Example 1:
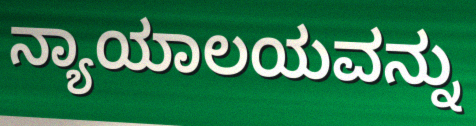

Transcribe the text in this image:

ನ್ಯಾಯಾಲಯವನ್ನು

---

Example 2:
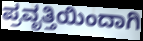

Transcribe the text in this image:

ಪ್ರವೃತ್ತಿಯಿಂದಾಗಿ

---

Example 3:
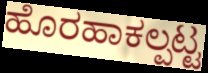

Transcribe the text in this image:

ಹೊರಹಾಕಲ್ಪಟ್ಟ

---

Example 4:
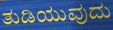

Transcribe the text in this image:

ತುಡಿಯುವುದು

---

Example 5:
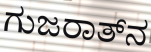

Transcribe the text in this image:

ಗುಜರಾತ್‌ನ